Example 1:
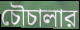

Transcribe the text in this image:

চৌচালার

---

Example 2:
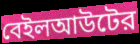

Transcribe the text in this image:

বেইলআউটের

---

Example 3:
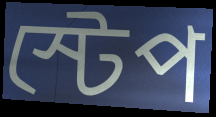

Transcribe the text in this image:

স্টেপ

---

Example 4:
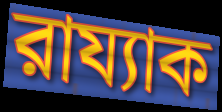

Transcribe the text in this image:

রায্যাক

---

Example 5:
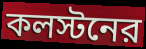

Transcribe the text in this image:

কলস্টনের